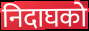
निदाघको